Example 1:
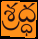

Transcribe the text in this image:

శ్రద్ధ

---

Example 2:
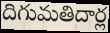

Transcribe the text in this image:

దిగుమతిదార్ల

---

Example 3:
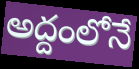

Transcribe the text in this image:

అద్దంలోనే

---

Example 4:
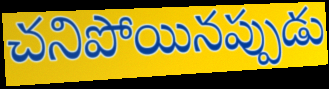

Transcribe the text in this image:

చనిపోయినప్పుడు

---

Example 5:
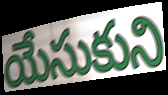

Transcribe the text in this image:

యేసుకుని